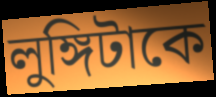
লুঙ্গিটাকে